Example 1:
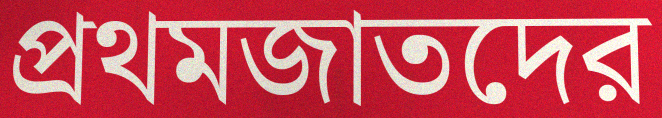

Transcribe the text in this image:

প্রথমজাতদের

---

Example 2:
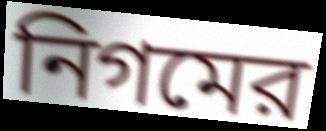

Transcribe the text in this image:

নিগমের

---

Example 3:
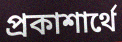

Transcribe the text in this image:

প্রকাশার্থে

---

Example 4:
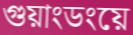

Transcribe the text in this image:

গুয়াংডংয়ে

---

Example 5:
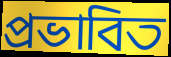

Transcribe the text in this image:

প্রভাবিত